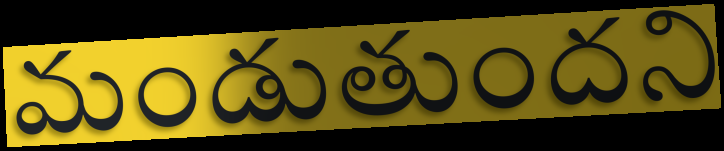
మండుతుందని